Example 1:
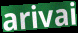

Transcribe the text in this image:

arivai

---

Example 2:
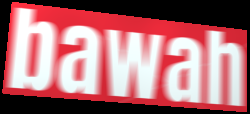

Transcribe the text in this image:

bawah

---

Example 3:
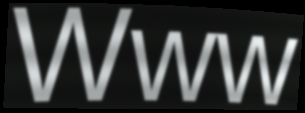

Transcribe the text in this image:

Www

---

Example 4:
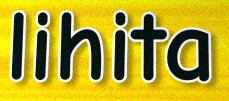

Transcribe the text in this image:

lihita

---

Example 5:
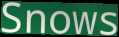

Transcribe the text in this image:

Snows